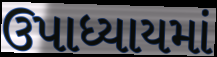
ઉપાધ્યાયમાં